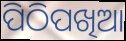
ପିଠିପଖିଆ